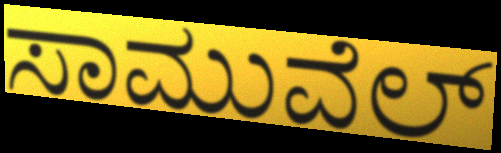
ಸಾಮುವೆಲ್